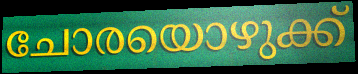
ചോരയൊഴുക്ക്